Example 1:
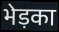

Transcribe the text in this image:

भेड़का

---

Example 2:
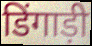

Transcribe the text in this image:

डिंगाड़ी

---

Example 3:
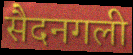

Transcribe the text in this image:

सैदनगली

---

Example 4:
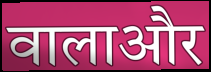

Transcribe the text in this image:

वालाऔर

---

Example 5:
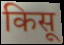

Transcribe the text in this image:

किसू